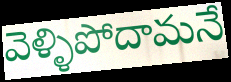
వెళ్ళిపోదామనే